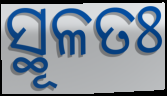
ସ୍ଥୂଳତଃ